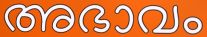
അഭാവം